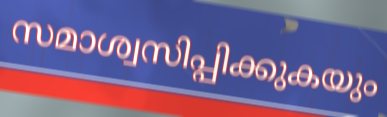
സമാശ്വസിപ്പിക്കുകയും